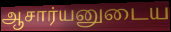
ஆசார்யனுடைய